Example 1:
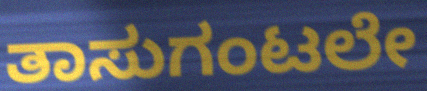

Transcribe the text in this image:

ತಾಸುಗಂಟಲೇ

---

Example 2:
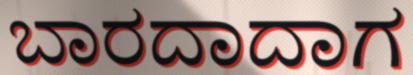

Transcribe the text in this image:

ಬಾರದಾದಾಗ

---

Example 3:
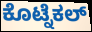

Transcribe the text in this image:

ಕೊಟ್ನೆಕಲ್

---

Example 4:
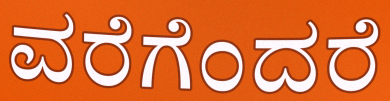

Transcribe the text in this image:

ವರೆಗೆಂದರೆ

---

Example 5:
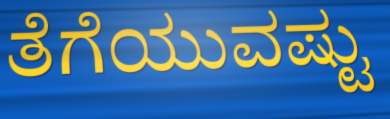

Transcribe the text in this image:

ತೆಗೆಯುವಷ್ಟು